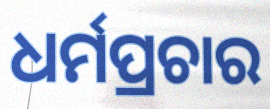
ଧର୍ମପ୍ରଚାର